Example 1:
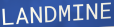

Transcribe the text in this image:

LANDMINE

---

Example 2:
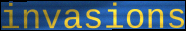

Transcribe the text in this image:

invasions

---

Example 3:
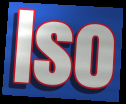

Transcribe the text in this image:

Iso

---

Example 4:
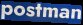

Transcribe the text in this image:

postman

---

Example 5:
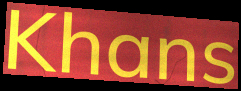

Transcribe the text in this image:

Khans